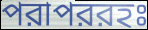
পরাপররহঃ